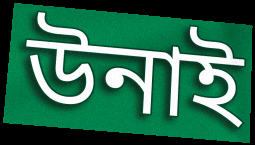
উনাই